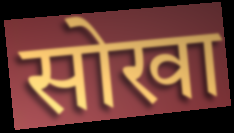
सोखा